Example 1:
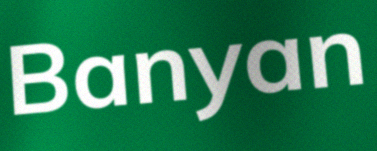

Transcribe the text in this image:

Banyan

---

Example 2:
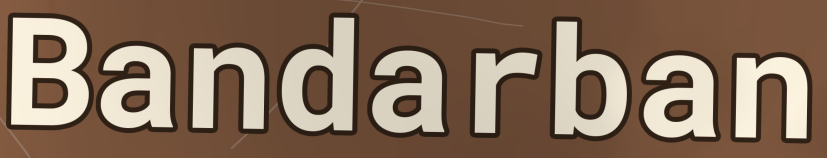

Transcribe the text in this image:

Bandarban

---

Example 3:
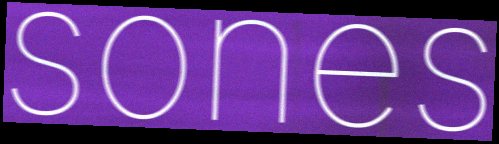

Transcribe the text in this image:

sones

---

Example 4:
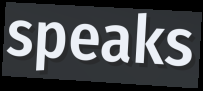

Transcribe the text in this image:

speaks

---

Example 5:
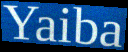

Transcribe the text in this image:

Yaiba